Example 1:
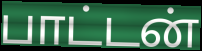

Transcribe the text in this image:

பாட்டன்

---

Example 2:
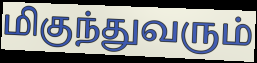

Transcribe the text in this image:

மிகுந்துவரும்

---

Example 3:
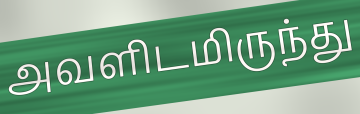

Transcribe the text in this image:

அவளிடமிருந்து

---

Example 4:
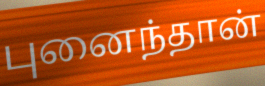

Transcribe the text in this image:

புனைந்தான்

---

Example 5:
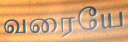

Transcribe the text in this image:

வரையே